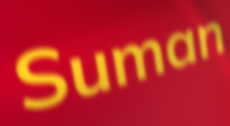
Suman